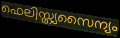
ഫെലിസ്ത്യസൈന്യം